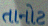
તાનોટ